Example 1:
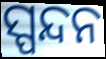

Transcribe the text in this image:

ସ୍ପନ୍ଦନ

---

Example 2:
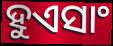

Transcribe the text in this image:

ହୁଏସାଂ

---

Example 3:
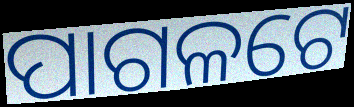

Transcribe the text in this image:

ପାଗଳଟେ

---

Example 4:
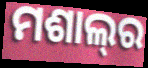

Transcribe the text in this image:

ମଶାଲ୍‌ର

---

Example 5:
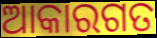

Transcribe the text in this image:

ଆକାରଗତ